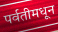
पर्वतीमधून